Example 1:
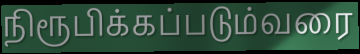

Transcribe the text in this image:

நிரூபிக்கப்படும்வரை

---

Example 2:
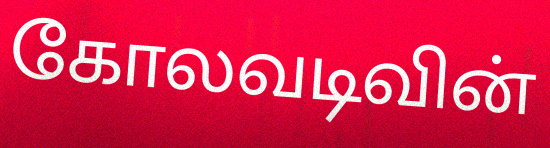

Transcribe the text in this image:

கோலவடிவின்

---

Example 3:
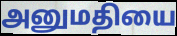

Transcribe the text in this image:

அனுமதியை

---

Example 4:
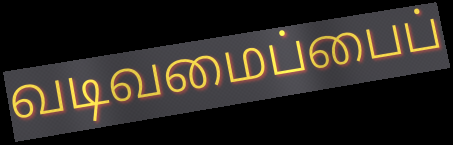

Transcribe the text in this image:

வடிவமைப்பைப்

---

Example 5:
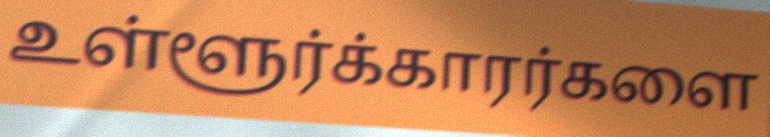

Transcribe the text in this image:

உள்ளூர்க்காரர்களை